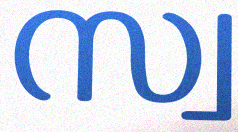
സ്വ